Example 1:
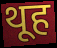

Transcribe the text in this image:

थूह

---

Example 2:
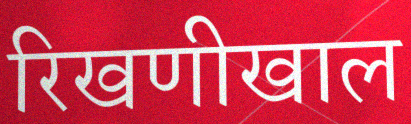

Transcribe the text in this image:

रिखणीखाल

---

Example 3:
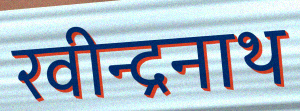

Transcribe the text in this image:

रवीन्‍द्रनाथ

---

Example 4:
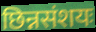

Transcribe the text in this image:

छिन्नसंशयः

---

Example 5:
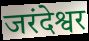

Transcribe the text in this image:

जरंदेश्वर